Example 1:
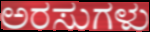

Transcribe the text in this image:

ಅರಸುಗಳು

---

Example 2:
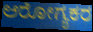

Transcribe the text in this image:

ಆರೋಗ್ಯಕರ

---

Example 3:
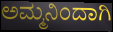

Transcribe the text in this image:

ಅಮ್ಮನಿಂದಾಗಿ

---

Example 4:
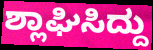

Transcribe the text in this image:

ಶ್ಲಾಘಿಸಿದ್ದು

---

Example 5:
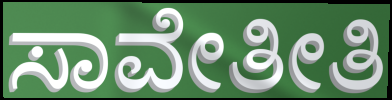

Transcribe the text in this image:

ಸಾವೇತೀತಿ